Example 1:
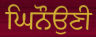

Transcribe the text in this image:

ਘਿਨੌਉਣੀ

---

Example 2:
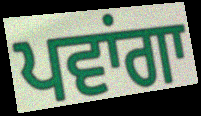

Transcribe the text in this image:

ਪਵਾਂਗਾ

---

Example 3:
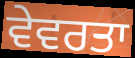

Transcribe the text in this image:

ਵੇਵਰਤਾ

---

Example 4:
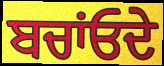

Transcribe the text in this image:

ਬਚਾਂਓਦੇ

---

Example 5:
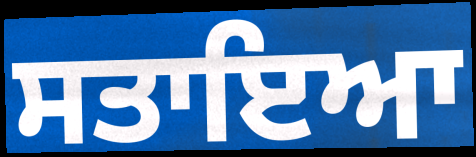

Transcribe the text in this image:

ਸਤਾਇਆ